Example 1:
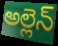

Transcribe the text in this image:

అల్లెన్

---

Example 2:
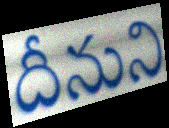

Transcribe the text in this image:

దీనుని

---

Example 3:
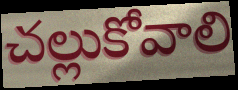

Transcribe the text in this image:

చల్లుకోవాలి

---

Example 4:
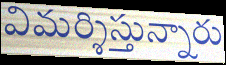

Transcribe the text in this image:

విమర్శిస్తున్నారు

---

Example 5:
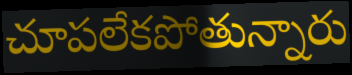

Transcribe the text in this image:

చూపలేకపోతున్నారు